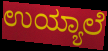
ಉಯ್ಯಾಲೆ